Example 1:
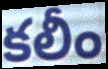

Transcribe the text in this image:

కలీం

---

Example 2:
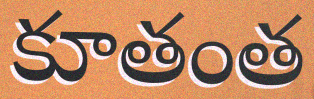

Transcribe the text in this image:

కూతంత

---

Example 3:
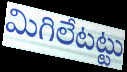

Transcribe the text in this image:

మిగిలేటట్టు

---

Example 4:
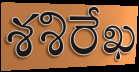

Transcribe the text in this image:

శశిరేఖ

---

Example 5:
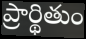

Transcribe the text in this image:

ప్రార్థితుం